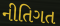
નીતિગત